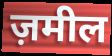
ज़मील